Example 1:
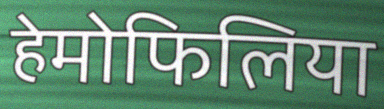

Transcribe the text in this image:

हेमोफिलिया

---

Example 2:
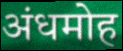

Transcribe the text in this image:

अंधमोह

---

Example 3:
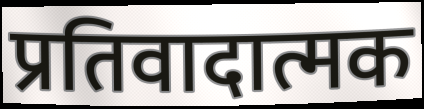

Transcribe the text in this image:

प्रतिवादात्मक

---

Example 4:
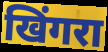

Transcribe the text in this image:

खिंगरा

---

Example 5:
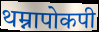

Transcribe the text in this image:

थम्नापोकपी